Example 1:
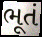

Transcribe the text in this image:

ભૂતં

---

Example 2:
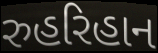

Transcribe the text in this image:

રુહરિહાન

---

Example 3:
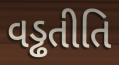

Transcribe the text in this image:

વડ્ઢતીતિ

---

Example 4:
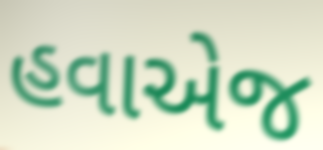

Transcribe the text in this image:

હવાએજ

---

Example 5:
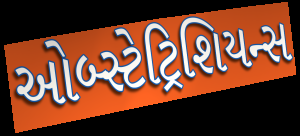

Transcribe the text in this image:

ઓબ્સ્ટેટ્રિશિયન્સ